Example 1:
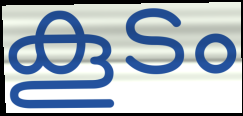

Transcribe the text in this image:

കൂടം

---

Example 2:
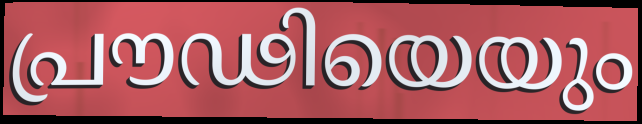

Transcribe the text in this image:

പ്രൗഢിയെയും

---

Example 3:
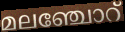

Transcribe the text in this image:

മലഞ്ചോറ്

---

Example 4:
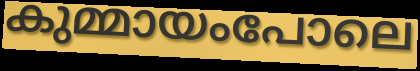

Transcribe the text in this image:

കുമ്മായംപോലെ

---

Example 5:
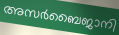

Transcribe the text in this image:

അസർബൈജാനി